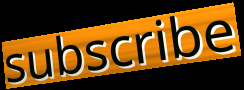
subscribe